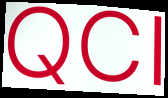
QCI